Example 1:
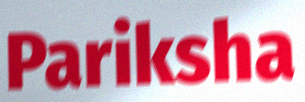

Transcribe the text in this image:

Pariksha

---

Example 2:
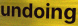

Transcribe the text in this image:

undoing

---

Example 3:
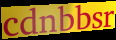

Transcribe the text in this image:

cdnbbsr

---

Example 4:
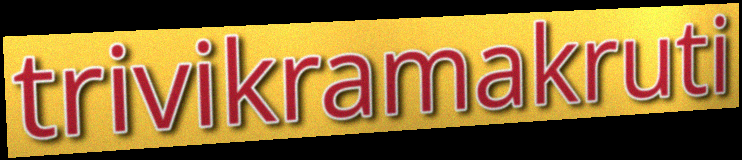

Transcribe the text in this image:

trivikramakruti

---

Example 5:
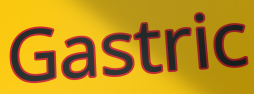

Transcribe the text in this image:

Gastric